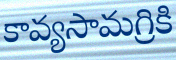
కావ్యసామగ్రికి